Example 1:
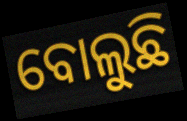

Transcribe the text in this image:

ବୋଲୁଛି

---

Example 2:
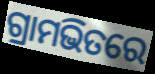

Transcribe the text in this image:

ଗ୍ରାମଭିତରେ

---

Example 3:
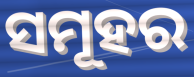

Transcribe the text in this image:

ସମୂହର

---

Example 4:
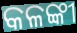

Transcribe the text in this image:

କଳଙ୍କୀ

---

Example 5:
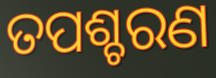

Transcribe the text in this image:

ତପଶ୍ଚରଣ